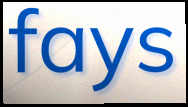
fays